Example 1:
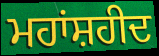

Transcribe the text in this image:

ਮਹਾਂਸ਼ਹੀਦ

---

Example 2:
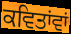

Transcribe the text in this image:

ਕਵਿਤਾਂਵਾਂ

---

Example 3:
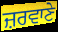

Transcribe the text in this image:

ਜ਼ਰਵਾਣੇ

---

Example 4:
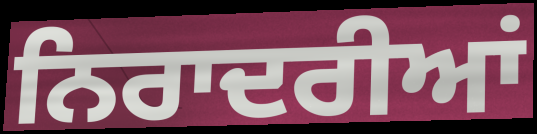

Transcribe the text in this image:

ਨਿਰਾਦਰੀਆਂ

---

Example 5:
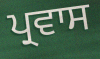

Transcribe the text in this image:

ਪ੍ਰਵਾਸ